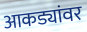
आकड्यांवर